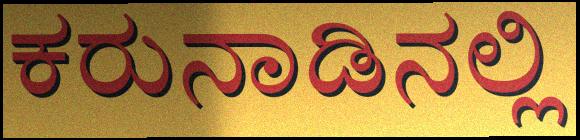
ಕರುನಾಡಿನಲ್ಲಿ